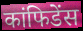
कांफिडेंस